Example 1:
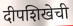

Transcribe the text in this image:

दीपशिखेची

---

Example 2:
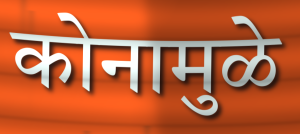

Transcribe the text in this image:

कोनामुळे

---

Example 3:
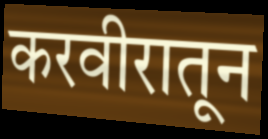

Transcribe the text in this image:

करवीरातून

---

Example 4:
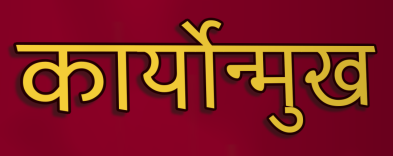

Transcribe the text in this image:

कार्योन्मुख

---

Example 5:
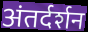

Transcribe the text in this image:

अंतर्दर्शन